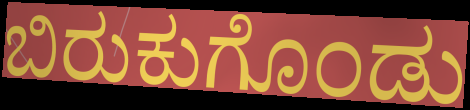
ಬಿರುಕುಗೊಂಡು